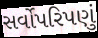
સર્વોપરિપણું